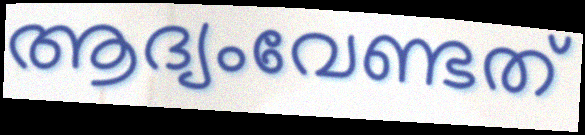
ആദ്യംവേണ്ടത്